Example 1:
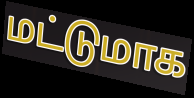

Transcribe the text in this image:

மட்டுமாக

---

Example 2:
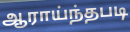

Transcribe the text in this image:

ஆராய்ந்தபடி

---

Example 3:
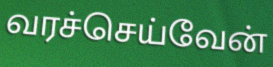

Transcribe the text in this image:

வரச்செய்வேன்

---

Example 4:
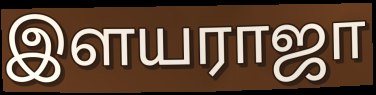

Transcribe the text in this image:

இளயராஜா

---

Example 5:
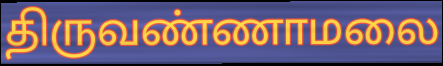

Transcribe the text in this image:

திருவண்ணாமலை